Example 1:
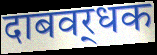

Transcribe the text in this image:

दाबवर्धक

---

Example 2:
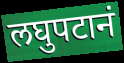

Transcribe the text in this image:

लघुपटानं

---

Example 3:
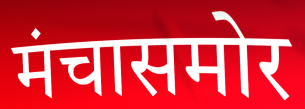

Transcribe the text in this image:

मंचासमोर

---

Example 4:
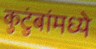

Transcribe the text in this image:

कुटुंबांमध्ये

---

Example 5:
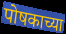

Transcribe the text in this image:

पोषकाच्या